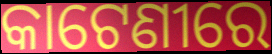
କାଟେଣୀରେ